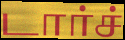
டார்ச்